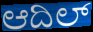
ಆದಿಲ್